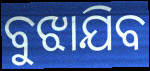
ବୁଝାଯିବ